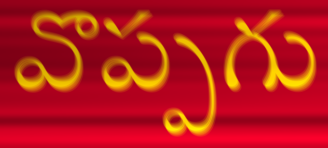
వొప్పగు